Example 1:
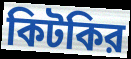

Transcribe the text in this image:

কিটকির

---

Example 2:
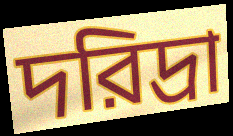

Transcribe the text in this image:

দরিদ্রা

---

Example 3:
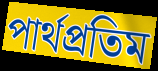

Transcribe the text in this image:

পার্থপ্রতিম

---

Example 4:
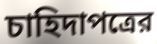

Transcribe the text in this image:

চাহিদাপত্রের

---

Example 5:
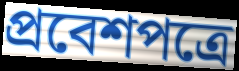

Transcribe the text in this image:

প্রবেশপত্রে